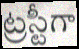
ట్రస్టీగా